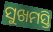
ସୁଖମସ୍ତି